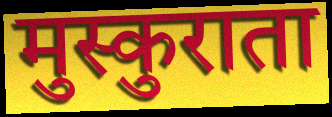
मुस्कुराता